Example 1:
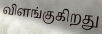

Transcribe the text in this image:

விளங்குகிறது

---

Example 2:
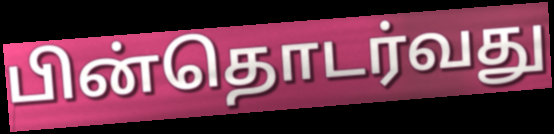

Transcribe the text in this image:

பின்தொடர்வது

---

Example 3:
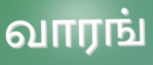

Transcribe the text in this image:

வாரங்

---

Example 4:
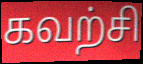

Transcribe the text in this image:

கவற்சி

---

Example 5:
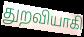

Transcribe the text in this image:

துறவியாகி